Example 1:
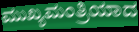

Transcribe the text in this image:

ಮುಖ್ಯಮಂತ್ರಿಯಾದ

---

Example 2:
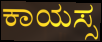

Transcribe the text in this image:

ಕಾಯಸ್ಸ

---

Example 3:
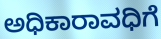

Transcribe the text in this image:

ಅಧಿಕಾರಾವಧಿಗೆ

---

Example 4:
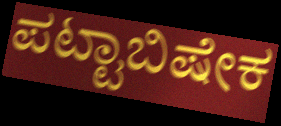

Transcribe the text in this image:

ಪಟ್ಟಾಬಿಷೇಕ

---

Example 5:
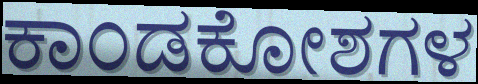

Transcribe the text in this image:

ಕಾಂಡಕೋಶಗಳ